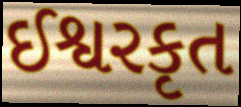
ઈશ્વરકૃત